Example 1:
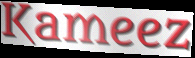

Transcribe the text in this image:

Kameez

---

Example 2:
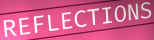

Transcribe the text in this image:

REFLECTIONS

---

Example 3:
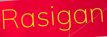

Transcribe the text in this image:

Rasigan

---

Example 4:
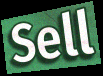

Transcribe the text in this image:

Sell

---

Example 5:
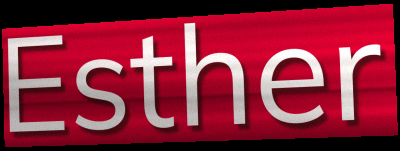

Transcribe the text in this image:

Esther